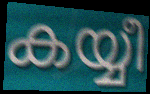
കയ്യീ